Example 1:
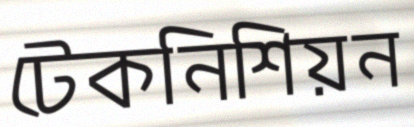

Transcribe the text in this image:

টেকনিশিয়ন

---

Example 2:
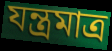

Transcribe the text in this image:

যন্ত্রমাত্র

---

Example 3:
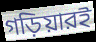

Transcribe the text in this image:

গড়িয়ারই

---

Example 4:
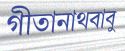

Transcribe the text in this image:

গীতানাথবাবু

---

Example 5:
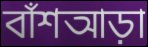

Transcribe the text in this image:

বাঁশআড়া